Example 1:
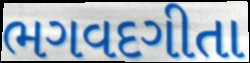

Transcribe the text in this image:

ભગવદગીતા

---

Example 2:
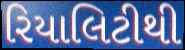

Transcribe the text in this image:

રિયાલિટીથી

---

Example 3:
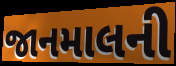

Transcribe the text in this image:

જાનમાલની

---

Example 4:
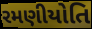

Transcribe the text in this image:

રમણીયોતિ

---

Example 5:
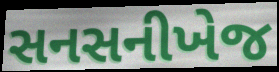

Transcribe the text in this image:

સનસનીખેજ